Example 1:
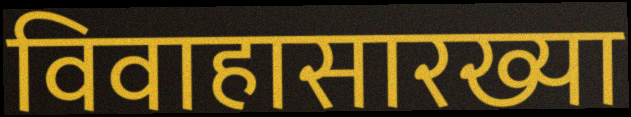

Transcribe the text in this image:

विवाहासारख्या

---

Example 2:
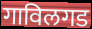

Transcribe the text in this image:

गाविलगड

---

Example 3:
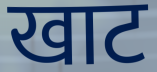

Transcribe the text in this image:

खाट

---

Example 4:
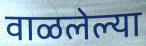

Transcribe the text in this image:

वाळलेल्या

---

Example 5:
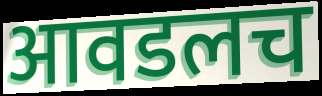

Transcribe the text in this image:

आवडलच